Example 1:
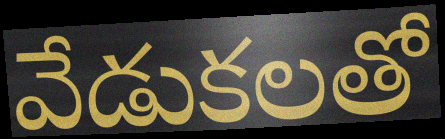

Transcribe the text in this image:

వేడుకలతో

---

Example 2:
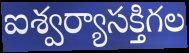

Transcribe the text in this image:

ఐశ్వర్యాసక్తిగల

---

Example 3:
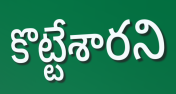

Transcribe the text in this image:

కొట్టేశారని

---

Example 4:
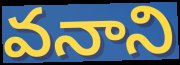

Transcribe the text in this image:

వనాని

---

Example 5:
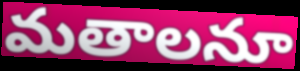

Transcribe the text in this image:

మతాలనూ